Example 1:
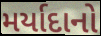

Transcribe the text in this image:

મર્યાદાનો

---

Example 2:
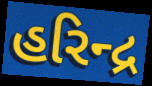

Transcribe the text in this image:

હરિન્દ્ર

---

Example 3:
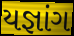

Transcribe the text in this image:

યજ્ઞાંગ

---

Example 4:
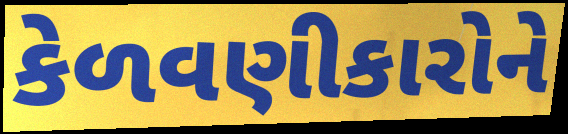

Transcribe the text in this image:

કેળવણીકારોને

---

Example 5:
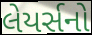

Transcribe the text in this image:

લેયર્સનો